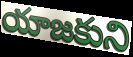
యాజకుని